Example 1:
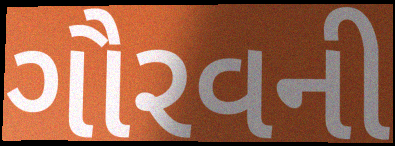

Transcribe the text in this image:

ગૌરવની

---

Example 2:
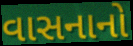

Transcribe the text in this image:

વાસનાનો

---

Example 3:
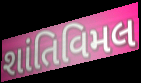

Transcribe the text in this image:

શાંતિવિમલ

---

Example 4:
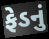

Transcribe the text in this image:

ફેડનું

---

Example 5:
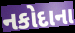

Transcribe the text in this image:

નકોદાના